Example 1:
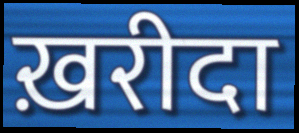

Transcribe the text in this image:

ख़रीदा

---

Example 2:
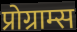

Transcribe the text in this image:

प्रोग्राम्स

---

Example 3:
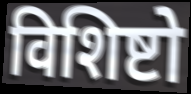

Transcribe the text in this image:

विशिष्टो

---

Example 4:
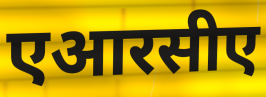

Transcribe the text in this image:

एआरसीए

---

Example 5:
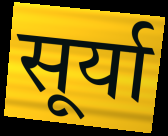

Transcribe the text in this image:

सूर्या